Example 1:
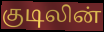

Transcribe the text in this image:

குடிலின்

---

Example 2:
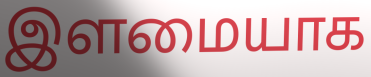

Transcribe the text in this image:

இளமையாக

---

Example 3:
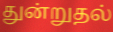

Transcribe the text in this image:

துன்றுதல்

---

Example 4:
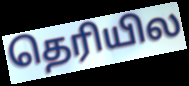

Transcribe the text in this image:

தெரியில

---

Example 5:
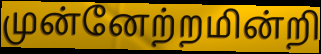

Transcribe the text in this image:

முன்னேற்றமின்றி